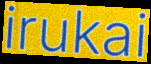
irukai